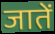
जातें